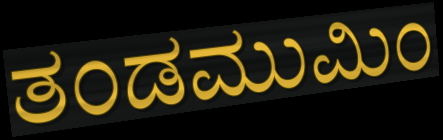
ತಂಡಮುಮಿಂ